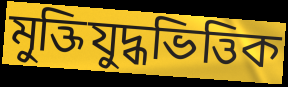
মুক্তিযুদ্ধভিত্তিক